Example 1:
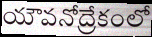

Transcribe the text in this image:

యౌవనోద్రేకంలో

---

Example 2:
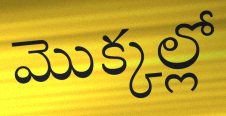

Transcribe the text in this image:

మొక్కల్లో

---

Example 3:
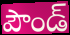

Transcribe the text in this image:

పౌండ్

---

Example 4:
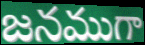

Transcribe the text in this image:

జనముగా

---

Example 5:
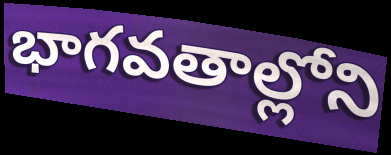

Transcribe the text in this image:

భాగవతాల్లోని